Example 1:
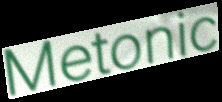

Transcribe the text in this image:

Metonic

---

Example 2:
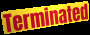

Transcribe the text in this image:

Terminated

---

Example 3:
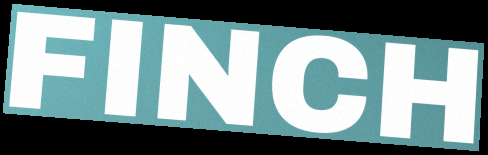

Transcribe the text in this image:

FINCH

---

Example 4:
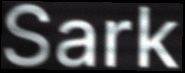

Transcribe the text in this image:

Sark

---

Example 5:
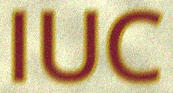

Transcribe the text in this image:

IUC